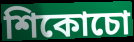
শিকোচো